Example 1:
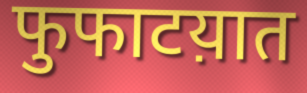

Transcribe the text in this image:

फुफाटय़ात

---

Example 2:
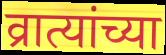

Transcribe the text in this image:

व्रात्यांच्या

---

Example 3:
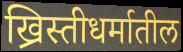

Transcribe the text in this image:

ख्रिस्तीधर्मातील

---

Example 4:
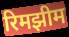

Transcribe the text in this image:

रिमझीम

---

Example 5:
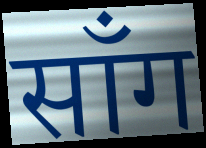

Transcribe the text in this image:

साँग